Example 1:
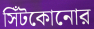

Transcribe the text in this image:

সিঁটকোনোর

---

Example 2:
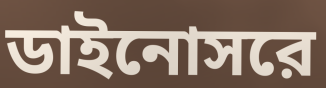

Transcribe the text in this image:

ডাইনোসরে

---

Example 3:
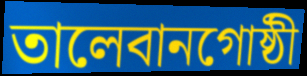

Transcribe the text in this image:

তালেবানগোষ্ঠী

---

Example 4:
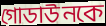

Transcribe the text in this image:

গোডাউনকে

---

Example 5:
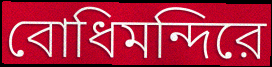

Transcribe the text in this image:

বোধিমন্দিরে